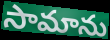
సామాను